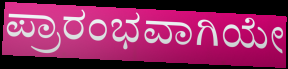
ಪ್ರಾರಂಭವಾಗಿಯೇ